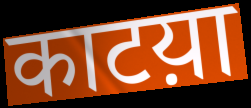
काटय़ा